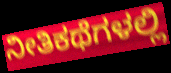
ನೀತಿಕಥೆಗಳಲ್ಲಿ